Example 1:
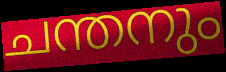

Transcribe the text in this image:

ചന്തനും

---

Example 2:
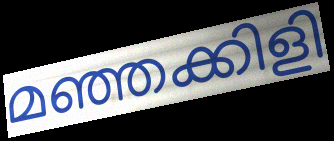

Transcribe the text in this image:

മഞ്ഞക്കിളി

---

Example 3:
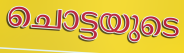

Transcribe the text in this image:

ചൊട്ടയുടെ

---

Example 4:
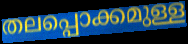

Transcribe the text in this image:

തലപ്പൊക്കമുള്ള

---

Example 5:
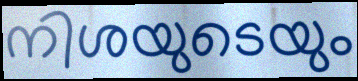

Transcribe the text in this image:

നിശയുടെയും